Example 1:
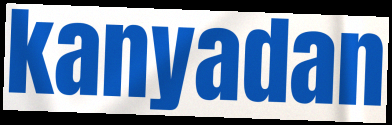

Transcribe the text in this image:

kanyadan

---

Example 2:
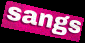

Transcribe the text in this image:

sangs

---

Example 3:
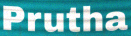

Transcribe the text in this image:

Prutha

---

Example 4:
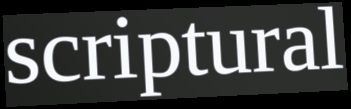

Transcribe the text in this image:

scriptural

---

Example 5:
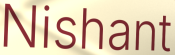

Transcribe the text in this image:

Nishant